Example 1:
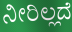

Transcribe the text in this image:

ನೀರಿಲ್ಲದೆ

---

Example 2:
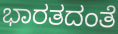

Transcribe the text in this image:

ಭಾರತದಂತೆ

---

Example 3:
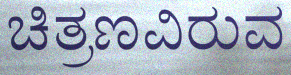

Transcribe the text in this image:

ಚಿತ್ರಣವಿರುವ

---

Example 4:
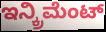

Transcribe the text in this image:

ಇನ್ಕ್ರಿಮೆಂಟ್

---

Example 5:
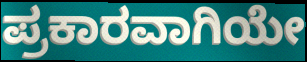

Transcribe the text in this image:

ಪ್ರಕಾರವಾಗಿಯೇ